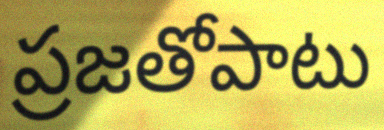
ప్రజతోపాటు